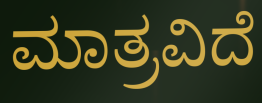
ಮಾತ್ರವಿದೆ